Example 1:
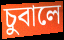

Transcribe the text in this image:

চুবালে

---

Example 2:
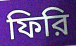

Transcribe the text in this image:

ফিরি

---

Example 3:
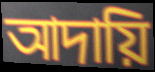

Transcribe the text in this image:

আদায়ি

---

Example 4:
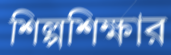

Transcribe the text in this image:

শিল্পশিক্ষার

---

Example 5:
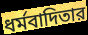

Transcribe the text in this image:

ধর্মবাদিতার